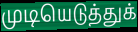
முடியெடுத்துக்